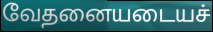
வேதனையடையச்